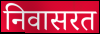
निवासरत